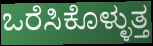
ಒರೆಸಿಕೊಳ್ಳುತ್ತ